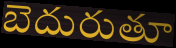
బెదురుతూ